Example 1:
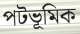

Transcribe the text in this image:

পটভূমিক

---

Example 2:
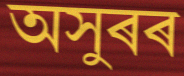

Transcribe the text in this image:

অসুৰৰ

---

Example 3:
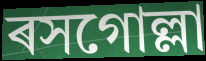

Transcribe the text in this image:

ৰসগোল্লা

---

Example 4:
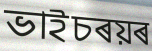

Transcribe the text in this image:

ভাইচৰয়ৰ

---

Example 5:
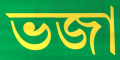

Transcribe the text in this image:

ভজা